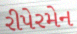
રીપેરમેન